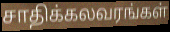
சாதிக்கலவரங்கள்